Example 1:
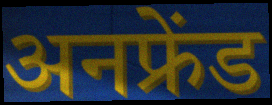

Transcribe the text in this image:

अनफ्रेंड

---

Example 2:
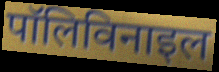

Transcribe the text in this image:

पॉलिविनाइल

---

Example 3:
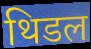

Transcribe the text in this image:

थिडल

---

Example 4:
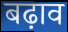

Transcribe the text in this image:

बढ़ाव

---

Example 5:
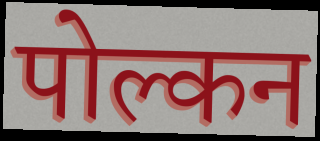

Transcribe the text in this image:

पोल्कन